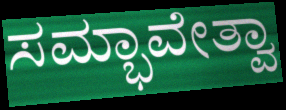
ಸಮ್ಭಾವೇತ್ವಾ